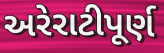
અરેરાટીપૂર્ણ